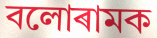
বলোৰামক